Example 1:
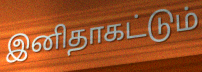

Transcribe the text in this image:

இனிதாகட்டும்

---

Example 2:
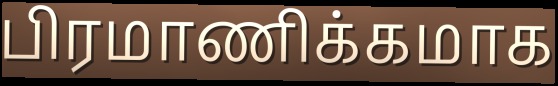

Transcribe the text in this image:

பிரமாணிக்கமாக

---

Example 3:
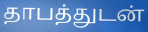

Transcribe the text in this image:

தாபத்துடன்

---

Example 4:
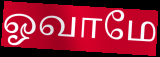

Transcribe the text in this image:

ஓவாமே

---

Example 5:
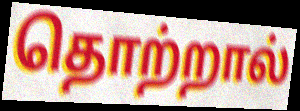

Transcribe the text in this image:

தொற்றால்